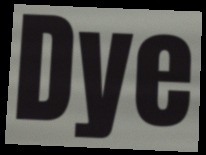
Dye